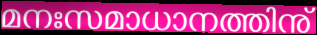
മനഃസമാധാനത്തിനു്